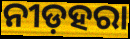
ନୀଡ଼ହରା